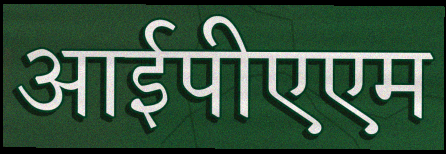
आईपीएएम